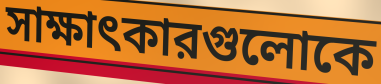
সাক্ষাৎকারগুলোকে